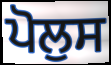
ਪੋਲੁਸ